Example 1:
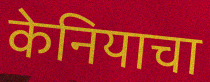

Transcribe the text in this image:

केनियाचा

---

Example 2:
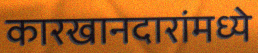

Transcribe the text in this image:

कारखानदारांमध्ये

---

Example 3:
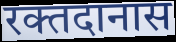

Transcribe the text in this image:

रक्तदानास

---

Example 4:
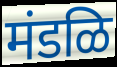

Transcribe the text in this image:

मंडळि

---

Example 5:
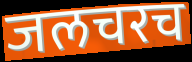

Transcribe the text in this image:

जलचरच